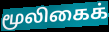
மூலிகைக்